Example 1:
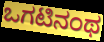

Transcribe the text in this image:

ಒಗಟಿನಂಥ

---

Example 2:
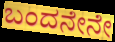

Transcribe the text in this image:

ಬಂದನೇನೇ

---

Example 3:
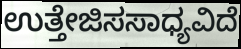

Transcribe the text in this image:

ಉತ್ತೇಜಿಸಸಾಧ್ಯವಿದೆ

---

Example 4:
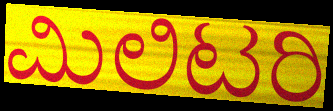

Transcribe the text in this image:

ಮಿಲಿಟರಿ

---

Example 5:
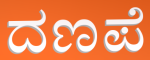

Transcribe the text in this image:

ದಣಪೆ